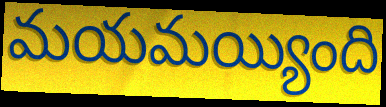
మయమయ్యింది